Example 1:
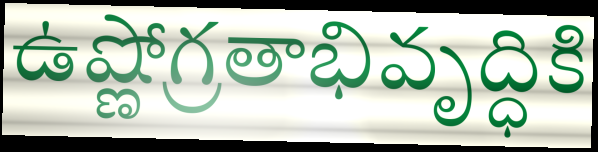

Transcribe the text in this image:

ఉష్ణోగ్రతాభివృద్ధికి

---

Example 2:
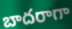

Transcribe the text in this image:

బాదరాగా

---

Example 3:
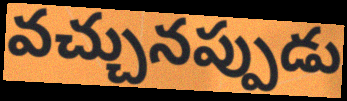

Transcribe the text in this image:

వచ్చునప్పుడు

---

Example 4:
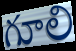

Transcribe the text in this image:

గూలి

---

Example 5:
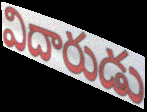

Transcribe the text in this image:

విదారుడు